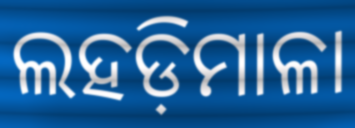
ଲହଡ଼ିମାଳା